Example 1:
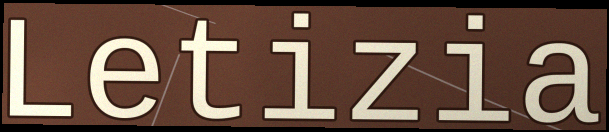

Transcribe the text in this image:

Letizia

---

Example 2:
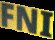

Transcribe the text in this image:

FNI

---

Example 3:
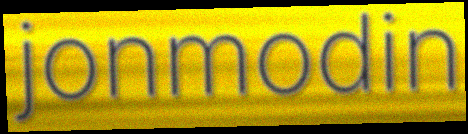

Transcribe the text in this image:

jonmodin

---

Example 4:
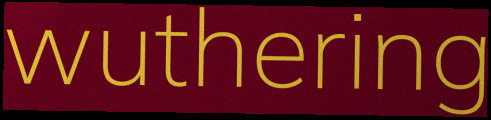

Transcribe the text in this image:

wuthering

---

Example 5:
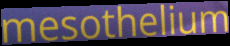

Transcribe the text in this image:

mesothelium